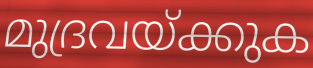
മുദ്രവയ്ക്കുക